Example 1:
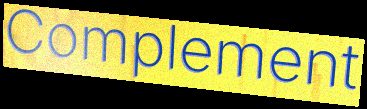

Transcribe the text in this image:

Complement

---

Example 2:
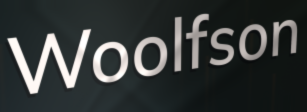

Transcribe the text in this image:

Woolfson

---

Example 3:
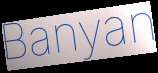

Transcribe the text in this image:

Banyan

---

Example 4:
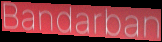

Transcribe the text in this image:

Bandarban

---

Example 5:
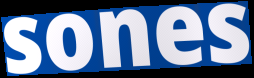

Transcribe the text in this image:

sones